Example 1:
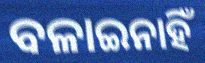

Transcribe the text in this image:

ବଳାଇନାହିଁ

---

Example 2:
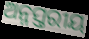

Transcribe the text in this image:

ଅନ୍ନସ୍ତରୀୟ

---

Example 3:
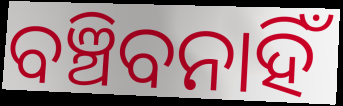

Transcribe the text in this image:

ବଞ୍ଚିବନାହିଁ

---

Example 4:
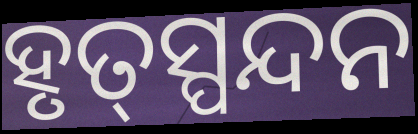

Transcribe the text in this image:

ହୃତ୍‍ସ୍ପନ୍ଦନ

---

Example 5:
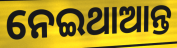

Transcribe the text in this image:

ନେଇଥାଆନ୍ତ